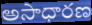
అసాధారణ